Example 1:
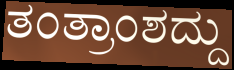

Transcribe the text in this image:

ತಂತ್ರಾಂಶದ್ದು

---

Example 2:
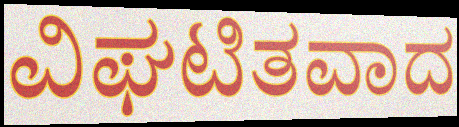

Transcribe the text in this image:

ವಿಘಟಿತವಾದ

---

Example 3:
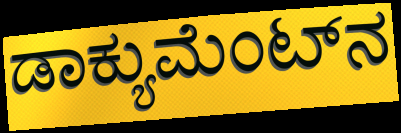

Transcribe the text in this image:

ಡಾಕ್ಯುಮೆಂಟ್‌ನ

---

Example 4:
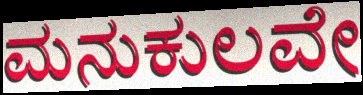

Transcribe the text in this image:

ಮನುಕುಲವೇ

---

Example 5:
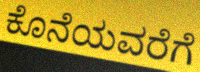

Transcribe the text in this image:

ಕೊನೆಯವರೆಗೆ